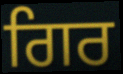
ਗਿਰ